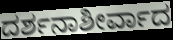
ದರ್ಶನಾಶೀರ್ವಾದ